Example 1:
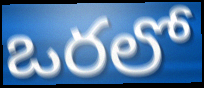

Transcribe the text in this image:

ఒరలో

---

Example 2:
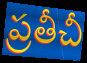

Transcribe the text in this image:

ప్రతీచీ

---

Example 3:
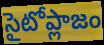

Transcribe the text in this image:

సైటోప్లాజం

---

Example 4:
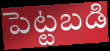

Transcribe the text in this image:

పెట్టబడి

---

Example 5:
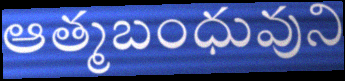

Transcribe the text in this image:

ఆత్మబంధువుని